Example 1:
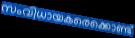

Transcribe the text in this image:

സംവിധായകരെക്കൊണ്ട്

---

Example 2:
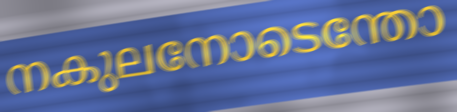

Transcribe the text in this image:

നകുലനോടെന്തോ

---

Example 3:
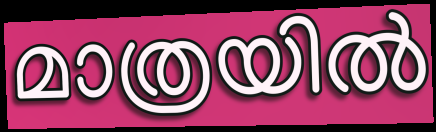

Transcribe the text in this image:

മാത്രയിൽ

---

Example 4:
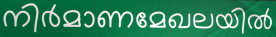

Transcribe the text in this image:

നിർമാണമേഖലയിൽ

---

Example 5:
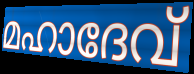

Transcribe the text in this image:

മഹാദേവ്